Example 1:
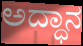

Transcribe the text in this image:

ಅದ್ಧಾನ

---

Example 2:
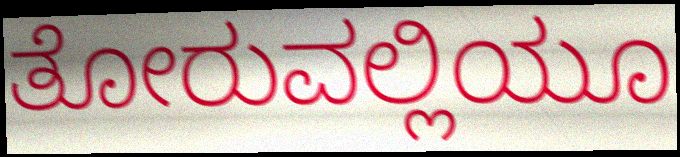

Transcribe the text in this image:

ತೋರುವಲ್ಲಿಯೂ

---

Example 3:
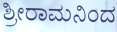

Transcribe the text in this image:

ಶ್ರೀರಾಮನಿಂದ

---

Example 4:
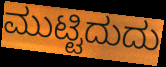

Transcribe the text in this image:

ಮುಟ್ಟಿದುದು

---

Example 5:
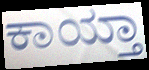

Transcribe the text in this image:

ಕಾಯ್ತಾ